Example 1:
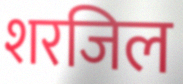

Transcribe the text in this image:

शरजिल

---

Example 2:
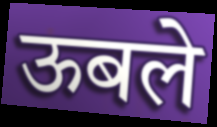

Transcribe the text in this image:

ऊबले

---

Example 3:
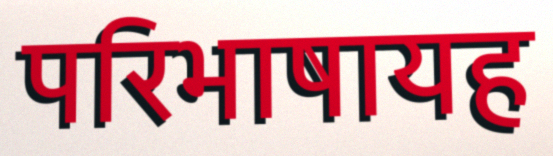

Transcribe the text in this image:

परिभाषायह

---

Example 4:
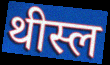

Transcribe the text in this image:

थीस्ल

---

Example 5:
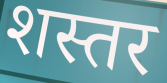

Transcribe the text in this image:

शस्तर